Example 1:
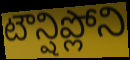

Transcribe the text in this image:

టౌన్షిప్లోని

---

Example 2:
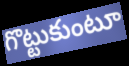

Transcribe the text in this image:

గొట్టుకుంటూ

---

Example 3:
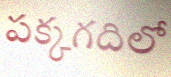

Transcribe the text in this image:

పక్కగదిలో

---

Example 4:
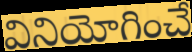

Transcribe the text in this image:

వినియోగించే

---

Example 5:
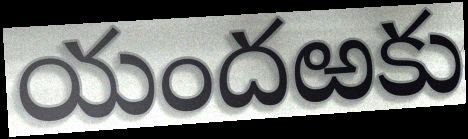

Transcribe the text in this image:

యందఱకు